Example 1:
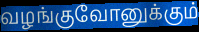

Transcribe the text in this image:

வழங்குவோனுக்கும்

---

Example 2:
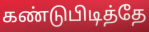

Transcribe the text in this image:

கண்டுபிடித்தே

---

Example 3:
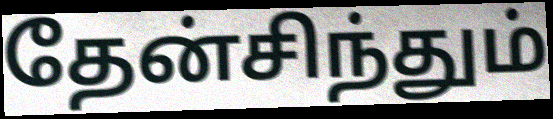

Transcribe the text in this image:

தேன்சிந்தும்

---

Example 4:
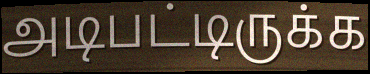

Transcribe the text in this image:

அடிபட்டிருக்க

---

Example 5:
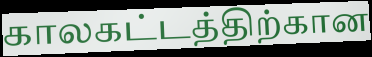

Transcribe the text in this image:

காலகட்டத்திற்கான